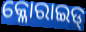
କ୍ଳୋରାଇଡ୍